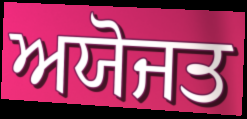
ਅਯੋਜਤ